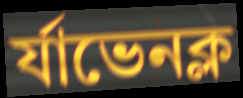
র্যাভেনক্ল